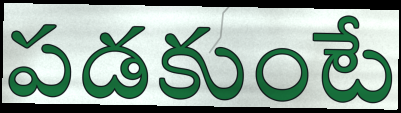
పడకుంటే